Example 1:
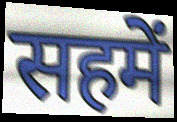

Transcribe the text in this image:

सहमें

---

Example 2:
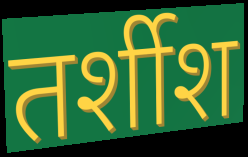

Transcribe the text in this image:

तर्शीश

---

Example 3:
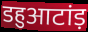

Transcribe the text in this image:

डहुआटांड़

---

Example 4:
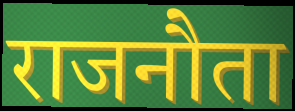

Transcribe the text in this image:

राजनौता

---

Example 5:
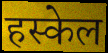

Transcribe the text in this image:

हस्केल